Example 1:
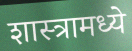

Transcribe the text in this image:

शास्त्रामध्ये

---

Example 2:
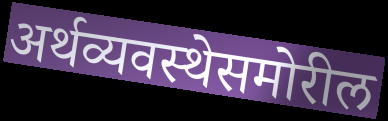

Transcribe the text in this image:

अर्थव्यवस्थेसमोरील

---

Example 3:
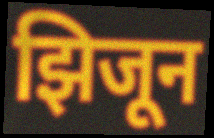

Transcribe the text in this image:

झिजून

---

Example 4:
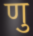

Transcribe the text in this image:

णु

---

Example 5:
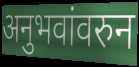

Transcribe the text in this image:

अनुभवांवरुन